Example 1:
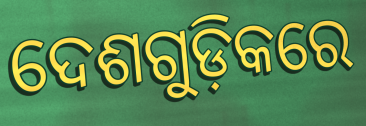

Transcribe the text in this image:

ଦେଶଗୁଡ଼ିକରେ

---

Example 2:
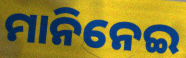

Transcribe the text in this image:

ମାନିନେଇ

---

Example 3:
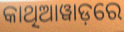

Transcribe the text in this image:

କାଥିଆୱାଡ଼ରେ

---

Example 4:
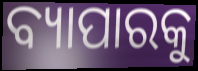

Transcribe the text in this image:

ବ୍ୟାପାରକୁ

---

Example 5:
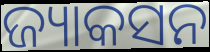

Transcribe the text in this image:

ଜ୍ୟାକସନ